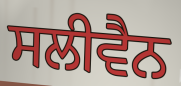
ਸਲੀਵੈਨ